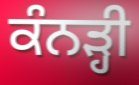
ਕੰਨੜ੍ਹੀ